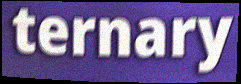
ternary